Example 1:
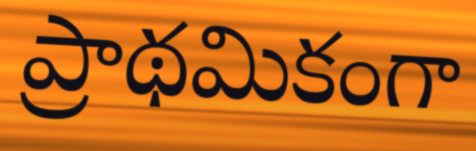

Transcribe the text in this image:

ప్రాథమికంగా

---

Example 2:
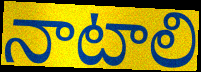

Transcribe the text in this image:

నాటాలి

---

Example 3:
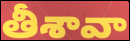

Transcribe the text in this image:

తీశావా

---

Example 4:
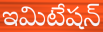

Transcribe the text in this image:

ఇమిటేషన్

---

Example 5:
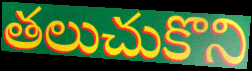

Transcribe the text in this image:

తలుచుకొని